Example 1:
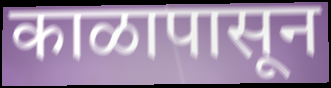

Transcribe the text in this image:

काळापासून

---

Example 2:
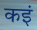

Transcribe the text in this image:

कइं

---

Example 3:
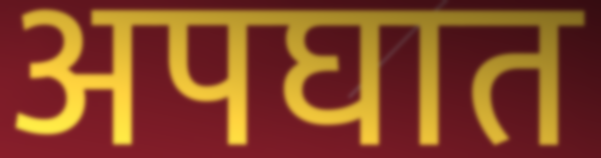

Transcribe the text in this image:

अपघात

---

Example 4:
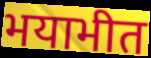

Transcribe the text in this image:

भयाभीत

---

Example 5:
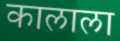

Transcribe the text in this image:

कालाला